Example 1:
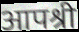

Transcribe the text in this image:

आपश्री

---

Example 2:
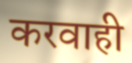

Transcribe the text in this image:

करवाही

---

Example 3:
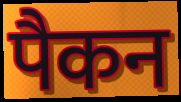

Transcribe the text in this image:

पैकन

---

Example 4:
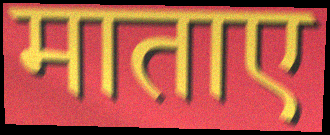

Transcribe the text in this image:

माताए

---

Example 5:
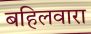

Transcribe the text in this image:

बहिलवारा